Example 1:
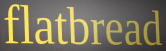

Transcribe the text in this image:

flatbread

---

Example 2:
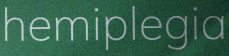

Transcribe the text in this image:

hemiplegia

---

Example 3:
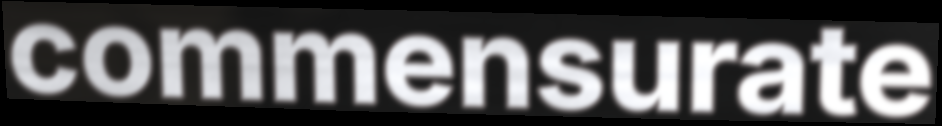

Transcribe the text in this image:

commensurate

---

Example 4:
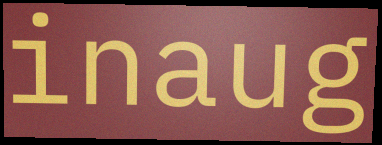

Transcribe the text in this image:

inaug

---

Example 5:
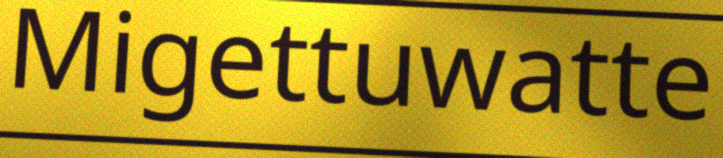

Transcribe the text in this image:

Migettuwatte